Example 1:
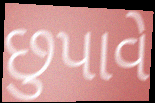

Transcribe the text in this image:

છુપાવે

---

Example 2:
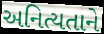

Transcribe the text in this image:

અનિત્યતાને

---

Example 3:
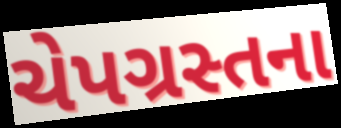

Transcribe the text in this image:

ચેપગ્રસ્તના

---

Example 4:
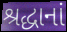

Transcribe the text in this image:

શ્રદ્ધાનાં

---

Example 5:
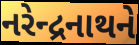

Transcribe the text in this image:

નરેન્દ્રનાથને